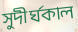
সুদীর্ঘকাল